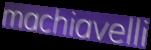
machiavelli